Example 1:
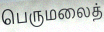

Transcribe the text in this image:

பெருமலைத்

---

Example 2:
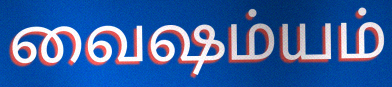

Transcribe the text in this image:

வைஷம்யம்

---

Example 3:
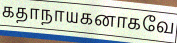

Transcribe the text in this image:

கதாநாயகனாகவே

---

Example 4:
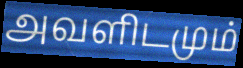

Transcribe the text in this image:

அவளிடமும்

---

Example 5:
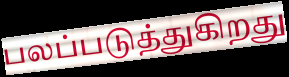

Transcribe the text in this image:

பலப்படுத்துகிறது